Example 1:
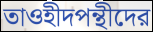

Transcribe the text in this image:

তাওহীদপন্থীদের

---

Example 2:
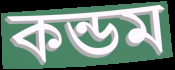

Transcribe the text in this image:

কন্ডম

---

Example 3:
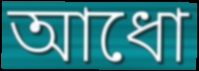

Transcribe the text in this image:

আধো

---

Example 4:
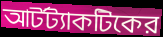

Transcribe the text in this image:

আর্টট্যাকটিকের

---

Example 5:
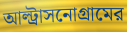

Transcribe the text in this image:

আল্ট্রাসনোগ্রামের